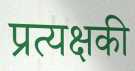
प्रत्यक्षकी